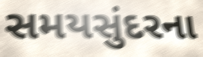
સમયસુંદરના